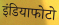
इंडियाफोटो